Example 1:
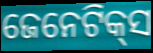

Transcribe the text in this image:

ଜେନେଟିକ୍‌ସ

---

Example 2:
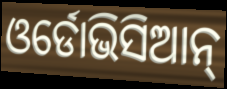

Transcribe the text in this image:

ଓର୍ଡୋଭିସିଆନ୍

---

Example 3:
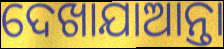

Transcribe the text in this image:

ଦେଖାଯାଆନ୍ତା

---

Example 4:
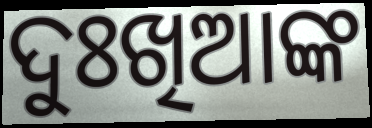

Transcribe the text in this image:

ଦୁଃଖିଆଙ୍କ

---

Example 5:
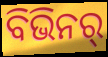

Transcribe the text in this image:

ବିଭିନର୍